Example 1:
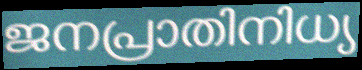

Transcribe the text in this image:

ജനപ്രാതിനിധ്യ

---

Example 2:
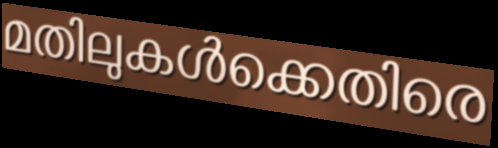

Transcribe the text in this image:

മതിലുകൾക്കെതിരെ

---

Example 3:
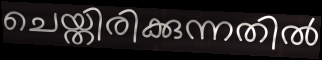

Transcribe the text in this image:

ചെയ്തിരിക്കുന്നതിൽ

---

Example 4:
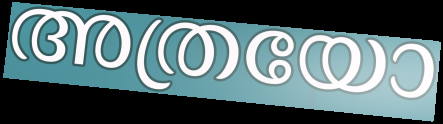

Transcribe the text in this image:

അത്രയോ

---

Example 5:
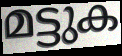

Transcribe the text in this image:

മട്ടുക